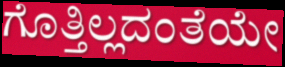
ಗೊತ್ತಿಲ್ಲದಂತೆಯೇ